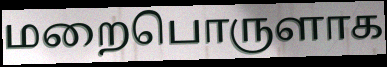
மறைபொருளாக